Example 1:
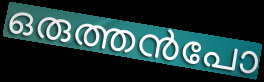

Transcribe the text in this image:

ഒരുത്തൻപോ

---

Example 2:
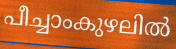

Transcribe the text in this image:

പീച്ചാംകുഴലിൽ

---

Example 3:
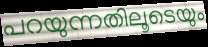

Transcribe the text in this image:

പറയുന്നതിലൂടെയും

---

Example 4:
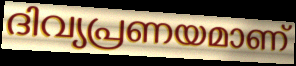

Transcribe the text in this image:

ദിവ്യപ്രണയമാണ്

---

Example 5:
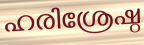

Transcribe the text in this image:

ഹരിശ്രേഷ്ഠ